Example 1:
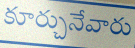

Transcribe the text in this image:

కూర్చునేవారు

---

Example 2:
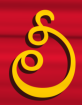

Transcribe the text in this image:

లీ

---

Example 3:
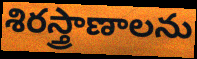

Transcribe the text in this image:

శిరస్త్రాణాలను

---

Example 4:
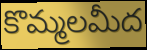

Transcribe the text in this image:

కొమ్మలమీద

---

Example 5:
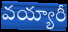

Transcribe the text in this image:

వయ్యారీ